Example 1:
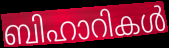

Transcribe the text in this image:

ബിഹാറികൾ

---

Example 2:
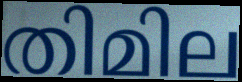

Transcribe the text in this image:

തിമില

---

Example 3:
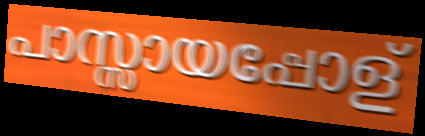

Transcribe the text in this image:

പാസ്സായപ്പോള്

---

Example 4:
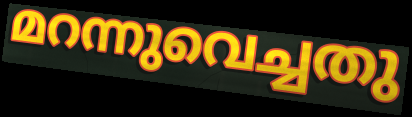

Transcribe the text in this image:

മറന്നുവെച്ചതു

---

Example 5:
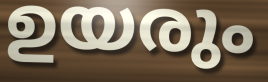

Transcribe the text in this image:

ഉയരും